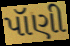
પૉણી